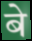
बे